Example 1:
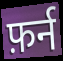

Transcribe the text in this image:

फ़र्न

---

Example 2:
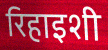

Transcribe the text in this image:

रिहाइशी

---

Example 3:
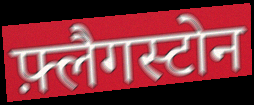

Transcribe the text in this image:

फ़्लैगस्टोन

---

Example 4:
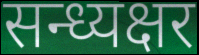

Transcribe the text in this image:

सन्ध्यक्षर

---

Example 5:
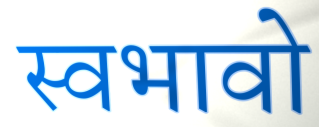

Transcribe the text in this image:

स्वभावो